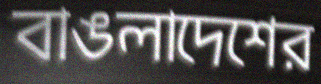
বাঙলাদেশের